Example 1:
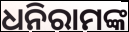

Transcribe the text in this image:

ଧନିରାମଙ୍କ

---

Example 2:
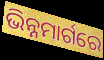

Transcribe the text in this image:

ଭିନ୍ନମାର୍ଗରେ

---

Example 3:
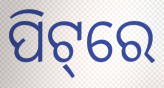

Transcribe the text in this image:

ପିଟ୍‌ରେ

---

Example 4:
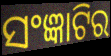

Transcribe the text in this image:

ସଂଜ୍ଞାଟିର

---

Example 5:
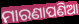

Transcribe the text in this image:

ମାରଣାପଣିଆ